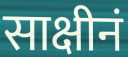
साक्षीनं